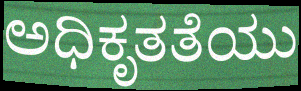
ಅಧಿಕೃತತೆಯು